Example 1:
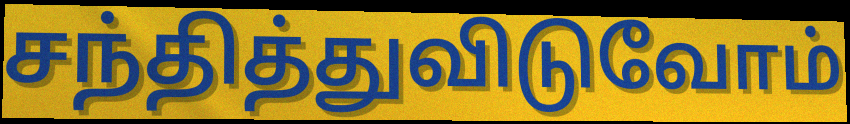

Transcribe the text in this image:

சந்தித்துவிடுவோம்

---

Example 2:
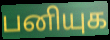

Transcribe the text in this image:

பனியுக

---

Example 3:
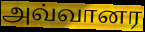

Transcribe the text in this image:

அவ்வானர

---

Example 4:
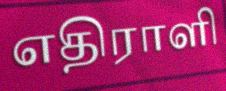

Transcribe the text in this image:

எதிராளி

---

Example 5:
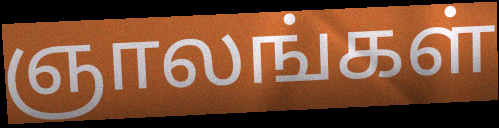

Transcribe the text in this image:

ஞாலங்கள்